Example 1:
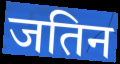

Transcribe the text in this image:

जतिन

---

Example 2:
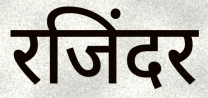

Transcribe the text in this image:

रजिंदर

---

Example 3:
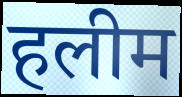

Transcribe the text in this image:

हलीम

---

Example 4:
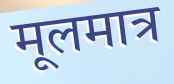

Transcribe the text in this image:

मूलमात्र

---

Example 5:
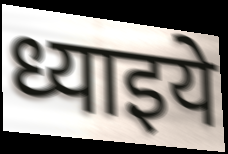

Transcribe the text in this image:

ध्याइये